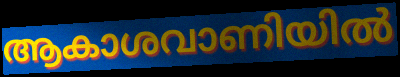
ആകാശവാണിയിൽ